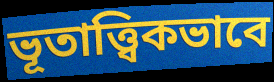
ভূতাত্ত্বিকভাবে